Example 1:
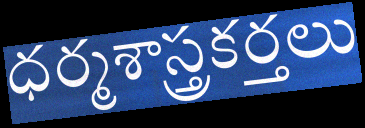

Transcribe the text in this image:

ధర్మశాస్త్రకర్తలు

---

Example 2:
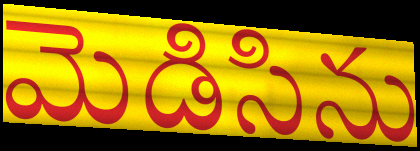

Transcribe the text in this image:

మెడిసిను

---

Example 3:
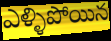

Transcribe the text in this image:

ఎళ్ళిపోయిన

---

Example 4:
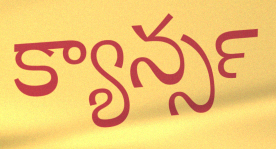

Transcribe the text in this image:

క్యాన్సర్‍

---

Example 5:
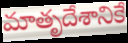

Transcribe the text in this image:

మాతృదేశానికే